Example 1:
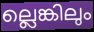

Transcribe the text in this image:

ല്ലെങ്കിലും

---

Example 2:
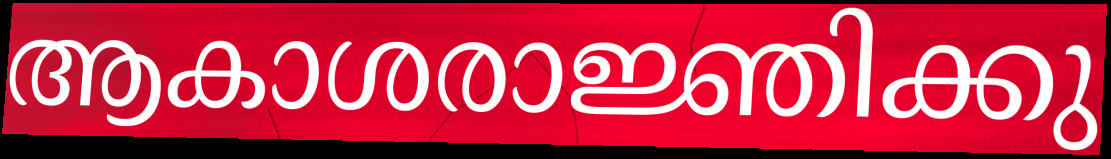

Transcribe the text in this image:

ആകാശരാജ്ഞിക്കു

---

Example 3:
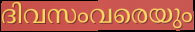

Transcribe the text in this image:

ദിവസംവരെയും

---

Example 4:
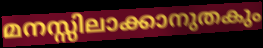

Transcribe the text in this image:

മനസ്സിലാക്കാനുതകും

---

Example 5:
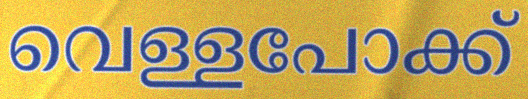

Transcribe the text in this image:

വെള്ളപോക്ക്